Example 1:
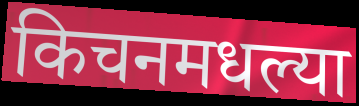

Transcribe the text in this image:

किचनमधल्या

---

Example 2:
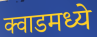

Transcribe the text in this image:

क्वाडमध्ये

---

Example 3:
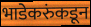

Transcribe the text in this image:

भाडेकरुंकडून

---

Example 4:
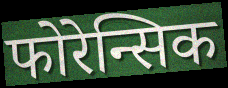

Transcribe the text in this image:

फोरेन्सिक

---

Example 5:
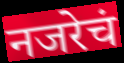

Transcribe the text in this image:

नजरेचं